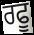
ਰਫੂ